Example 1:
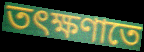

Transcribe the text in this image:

তৎক্ষণাতে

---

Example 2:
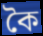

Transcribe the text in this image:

কৈ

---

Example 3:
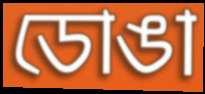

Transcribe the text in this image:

ডোঙা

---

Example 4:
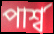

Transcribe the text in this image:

পাৰ্শ্ব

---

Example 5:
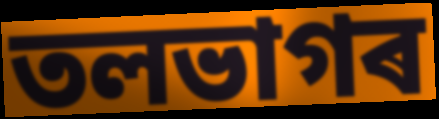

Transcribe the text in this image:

তলভাগৰ